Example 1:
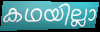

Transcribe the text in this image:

കഥയില്ലാ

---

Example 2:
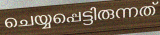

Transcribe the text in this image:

ചെയ്യപ്പെട്ടിരുന്നത്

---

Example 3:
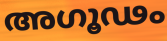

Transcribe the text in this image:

അഗൂഢം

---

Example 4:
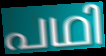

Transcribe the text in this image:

പഥി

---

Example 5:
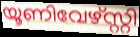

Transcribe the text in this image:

യൂണിവേഴ്സ്റ്റി